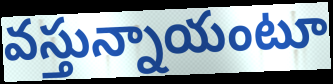
వస్తున్నాయంటూ